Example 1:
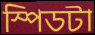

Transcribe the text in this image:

স্পিডটা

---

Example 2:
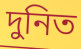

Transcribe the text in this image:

দুনিত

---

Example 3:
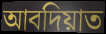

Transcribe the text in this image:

আবদিয়াত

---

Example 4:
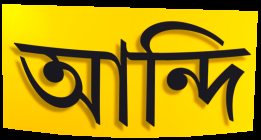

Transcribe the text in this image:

আন্দি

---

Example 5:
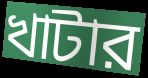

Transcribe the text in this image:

খাটার